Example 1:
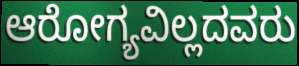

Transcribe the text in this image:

ಆರೋಗ್ಯವಿಲ್ಲದವರು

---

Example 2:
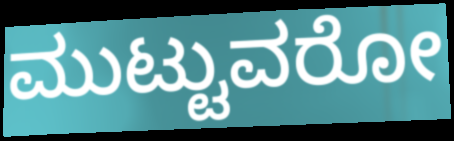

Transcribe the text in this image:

ಮುಟ್ಟುವರೋ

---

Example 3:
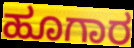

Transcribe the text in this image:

ಹೂಗಾರ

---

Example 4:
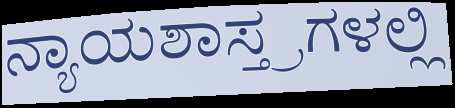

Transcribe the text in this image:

ನ್ಯಾಯಶಾಸ್ತ್ರಗಳಲ್ಲಿ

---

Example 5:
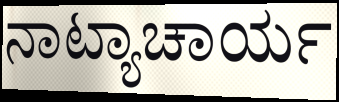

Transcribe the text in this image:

ನಾಟ್ಯಾಚಾರ್ಯ